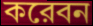
করেবন